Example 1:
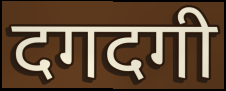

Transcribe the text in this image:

दगदगी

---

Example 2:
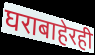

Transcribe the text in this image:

घराबाहेरही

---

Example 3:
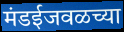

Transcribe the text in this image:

मंडईजवळच्या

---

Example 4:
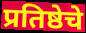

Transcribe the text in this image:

प्रतिष्ठेचे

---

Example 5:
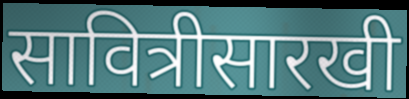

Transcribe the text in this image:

सावित्रीसारखी